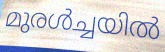
മുരൾച്ചയിൽ